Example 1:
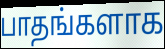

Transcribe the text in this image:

பாதங்களாக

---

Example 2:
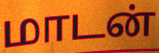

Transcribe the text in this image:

மாடன்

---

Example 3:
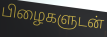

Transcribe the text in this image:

பிழைகளுடன்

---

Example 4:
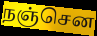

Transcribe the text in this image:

நஞ்சென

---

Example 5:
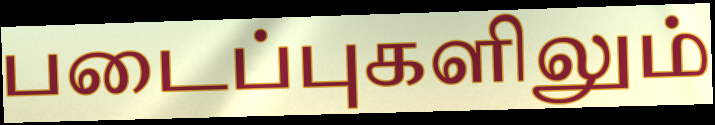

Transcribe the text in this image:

படைப்புகளிலும்